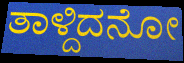
ತಾಳ್ದಿದನೋ